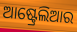
ଆଷ୍ଟ୍ରେଲିଆର